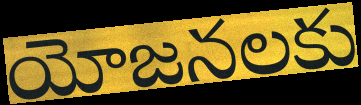
యోజనలకు